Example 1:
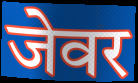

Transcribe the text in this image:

जेवर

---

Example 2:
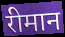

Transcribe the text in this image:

रीमान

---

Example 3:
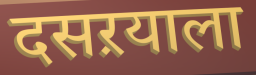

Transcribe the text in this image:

दसऱयाला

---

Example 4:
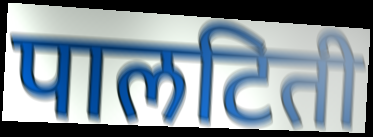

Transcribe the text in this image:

पालटिती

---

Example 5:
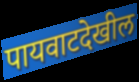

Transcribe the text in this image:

पायवाटदेखील